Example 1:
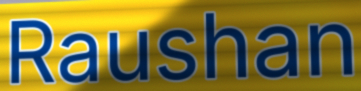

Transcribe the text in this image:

Raushan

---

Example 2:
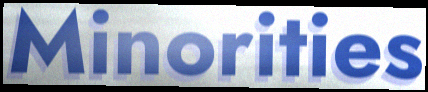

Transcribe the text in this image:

Minorities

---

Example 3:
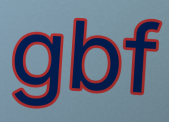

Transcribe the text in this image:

gbf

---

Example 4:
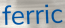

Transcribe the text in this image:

ferric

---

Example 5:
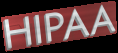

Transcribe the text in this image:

HIPAA